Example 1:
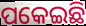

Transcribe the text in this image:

ପକେଇଛି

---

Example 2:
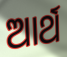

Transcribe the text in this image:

ଆର୍ଥ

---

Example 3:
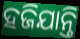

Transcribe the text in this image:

ହଜିଯାନ୍ତି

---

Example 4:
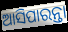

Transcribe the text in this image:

ଆସିପାରନ୍ତା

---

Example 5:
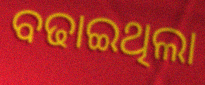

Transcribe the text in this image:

ବଢାଇଥିଲା